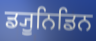
ਡ੍ਯੂਨਿਡਿਨ